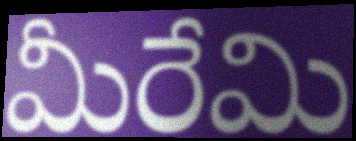
మీరేమి